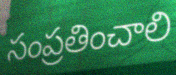
సంప్రతించాలి